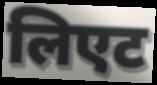
लिएट